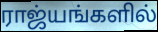
ராஜ்யங்களில்